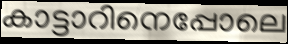
കാട്ടാറിനെപ്പോലെ